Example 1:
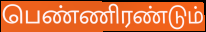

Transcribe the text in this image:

பெண்ணிரண்டும்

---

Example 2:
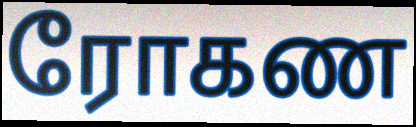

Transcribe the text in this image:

ரோகண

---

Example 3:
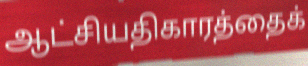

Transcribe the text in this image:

ஆட்சியதிகாரத்தைக்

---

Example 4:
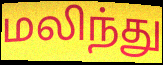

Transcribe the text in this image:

மலிந்து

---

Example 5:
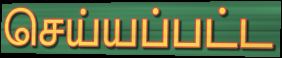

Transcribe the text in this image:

செய்யப்பட்ட